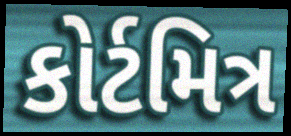
કોર્ટમિત્ર